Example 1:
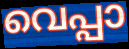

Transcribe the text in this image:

വെപ്പാ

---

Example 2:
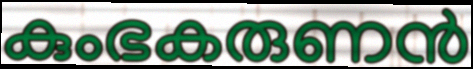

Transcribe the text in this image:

കുംഭകരുണൻ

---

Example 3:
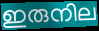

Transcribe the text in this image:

ഇരുനില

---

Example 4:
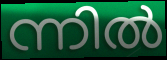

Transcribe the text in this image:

ന്നിൽ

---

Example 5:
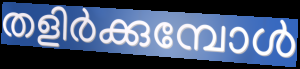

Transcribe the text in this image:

തളിർക്കുമ്പോൾ